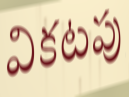
వికటపు